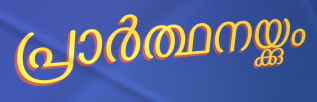
പ്രാർത്ഥനയ്ക്കും